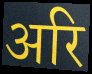
अरि